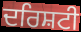
ਦਰਿਸ਼ਟੀ